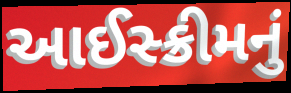
આઈસ્ક્રીમનું